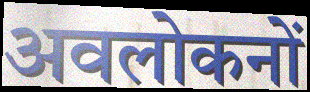
अवलोकनों